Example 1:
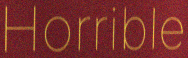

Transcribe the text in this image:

Horrible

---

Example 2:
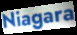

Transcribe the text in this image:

Niagara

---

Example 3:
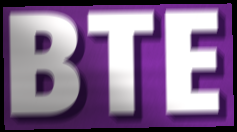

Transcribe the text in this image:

BTE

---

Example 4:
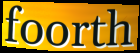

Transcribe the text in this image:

foorth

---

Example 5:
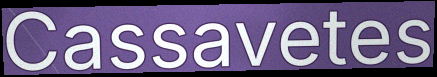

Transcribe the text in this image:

Cassavetes